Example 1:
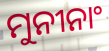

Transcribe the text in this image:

ମୁନୀନାଂ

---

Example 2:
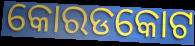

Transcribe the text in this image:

କୋରଡକୋଟ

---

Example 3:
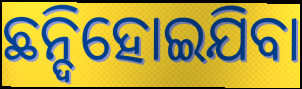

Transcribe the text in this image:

ଛନ୍ଦିହୋଇଯିବା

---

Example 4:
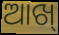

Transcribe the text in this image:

ଆଖ୍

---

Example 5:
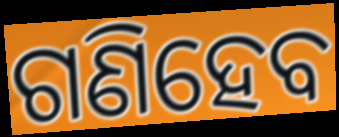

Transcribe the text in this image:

ଗଣିହେବ